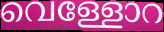
വെള്ളോറ